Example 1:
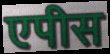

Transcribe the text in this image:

एपीस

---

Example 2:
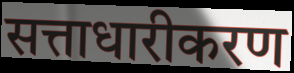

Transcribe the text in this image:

सत्ताधारीकरण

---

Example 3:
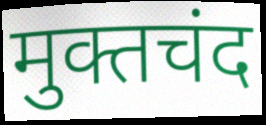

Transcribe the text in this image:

मुक्तचंद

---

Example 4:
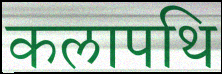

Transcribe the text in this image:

कलापथि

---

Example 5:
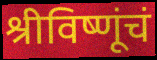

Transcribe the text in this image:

श्रीविष्णूंचं